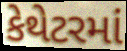
કેથેટરમાં